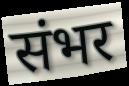
संभर